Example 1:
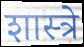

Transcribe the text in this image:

शास्त्रे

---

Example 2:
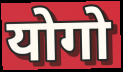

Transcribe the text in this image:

योगो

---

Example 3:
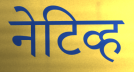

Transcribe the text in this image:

नेटिव्ह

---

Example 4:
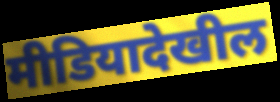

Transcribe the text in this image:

मीडियादेखील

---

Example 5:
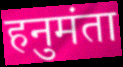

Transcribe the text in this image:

हनुमंता